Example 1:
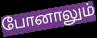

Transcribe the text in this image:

போனாலும்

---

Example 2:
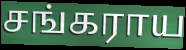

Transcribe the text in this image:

சங்கராய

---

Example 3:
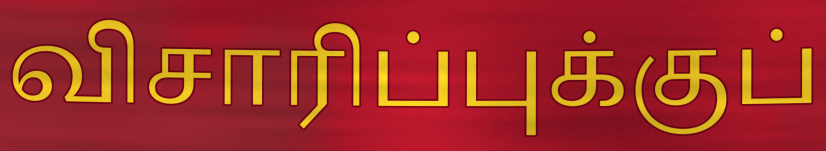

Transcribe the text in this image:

விசாரிப்புக்குப்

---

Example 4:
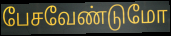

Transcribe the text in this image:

பேசவேண்டுமோ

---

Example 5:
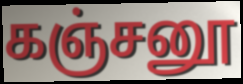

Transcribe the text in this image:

கஞ்சனூ